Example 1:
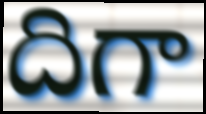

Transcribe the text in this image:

దిగా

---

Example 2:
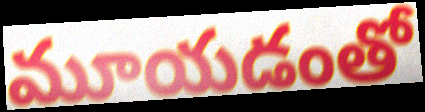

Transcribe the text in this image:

మూయడంతో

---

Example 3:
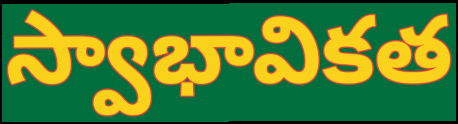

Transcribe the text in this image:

స్వాభావికత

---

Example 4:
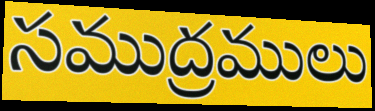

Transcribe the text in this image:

సముద్రములు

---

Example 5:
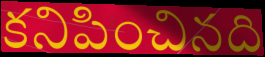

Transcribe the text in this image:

కనిపించినది